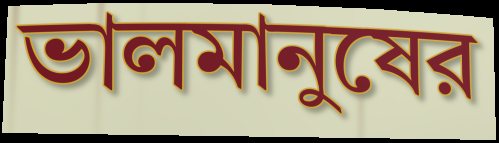
ভালমানুষের